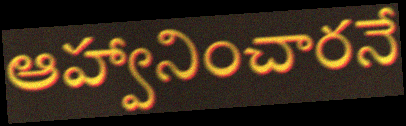
ఆహ్వానించారనే